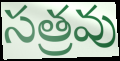
సత్రవు